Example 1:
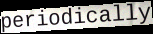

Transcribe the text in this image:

periodically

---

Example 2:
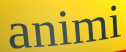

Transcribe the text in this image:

animi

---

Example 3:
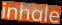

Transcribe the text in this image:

inhale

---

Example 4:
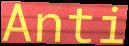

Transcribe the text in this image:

Anti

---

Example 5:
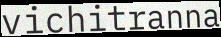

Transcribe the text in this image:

vichitranna